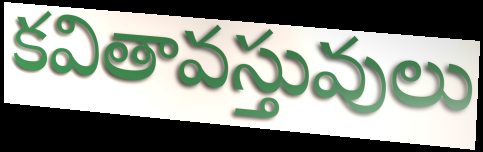
కవితావస్తువులు